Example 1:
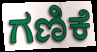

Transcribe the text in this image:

ಗಣಿಕೆ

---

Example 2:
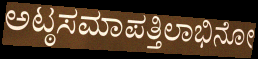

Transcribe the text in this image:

ಅಟ್ಠಸಮಾಪತ್ತಿಲಾಭಿನೋ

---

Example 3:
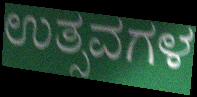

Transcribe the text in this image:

ಉತ್ಸವಗಳ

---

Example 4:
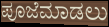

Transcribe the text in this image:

ಪೂಜೆಮಾಡಲು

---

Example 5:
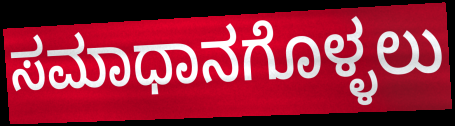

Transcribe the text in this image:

ಸಮಾಧಾನಗೊಳ್ಳಲು